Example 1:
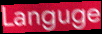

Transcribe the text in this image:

Languge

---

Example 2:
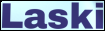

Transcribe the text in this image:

Laski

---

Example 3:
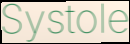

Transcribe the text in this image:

Systole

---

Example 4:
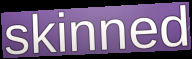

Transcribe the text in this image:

skinned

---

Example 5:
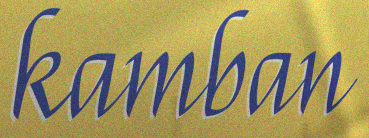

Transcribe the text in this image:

kamban